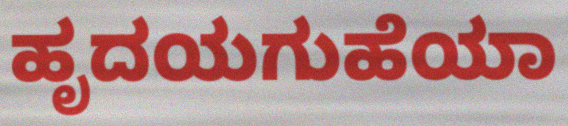
ಹೃದಯಗುಹೆಯಾ